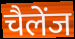
चैलेंज